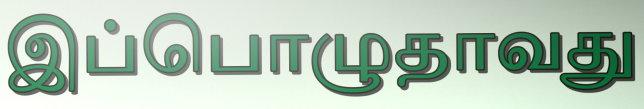
இப்பொழுதாவது